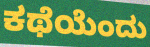
ಕಥೆಯೆಂದು